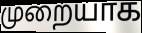
முறையாக